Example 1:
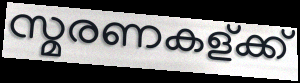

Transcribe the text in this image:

സ്മരണകള്ക്ക്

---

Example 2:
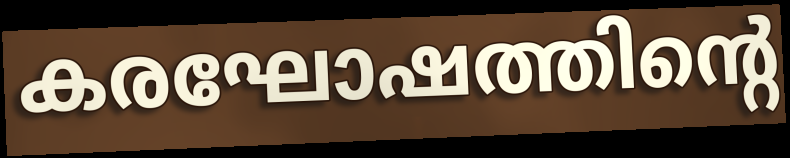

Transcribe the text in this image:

കരഘോഷത്തിന്റെ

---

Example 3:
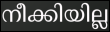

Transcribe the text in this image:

നീക്കിയില്ല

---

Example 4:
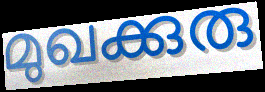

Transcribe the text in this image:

മുഖക്കുരു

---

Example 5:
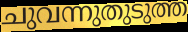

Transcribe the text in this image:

ചുവന്നുതുടുത്ത